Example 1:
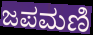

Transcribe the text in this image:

ಜಪಮಣಿ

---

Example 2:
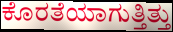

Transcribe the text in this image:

ಕೊರತೆಯಾಗುತ್ತಿತ್ತು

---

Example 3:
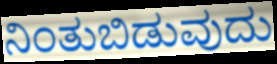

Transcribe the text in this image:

ನಿಂತುಬಿಡುವುದು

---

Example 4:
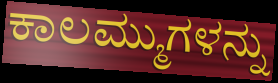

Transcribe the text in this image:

ಕಾಲಮ್ಮುಗಳನ್ನು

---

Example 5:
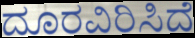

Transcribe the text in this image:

ದೂರವಿರಿಸಿದೆ